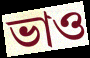
ভাও